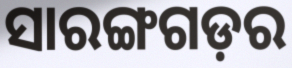
ସାରଙ୍ଗଗଡ଼ର